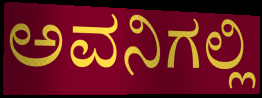
ಅವನಿಗಲ್ಲಿ